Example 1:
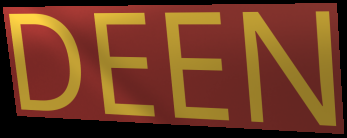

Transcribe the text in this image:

DEEN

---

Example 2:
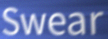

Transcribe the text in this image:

Swear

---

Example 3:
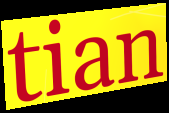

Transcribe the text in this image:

tian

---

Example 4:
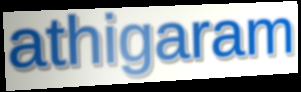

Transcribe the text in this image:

athigaram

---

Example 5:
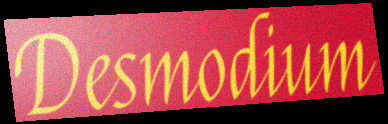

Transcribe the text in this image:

Desmodium